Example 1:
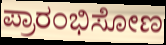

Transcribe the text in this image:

ಪ್ರಾರಂಭಿಸೋಣ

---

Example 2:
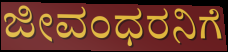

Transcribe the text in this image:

ಜೀವಂಧರನಿಗೆ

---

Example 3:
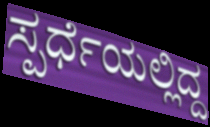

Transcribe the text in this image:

ಸ್ಪರ್ಧೆಯಲ್ಲಿದ್ದ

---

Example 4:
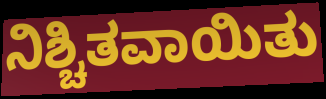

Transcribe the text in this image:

ನಿಶ್ಚಿತವಾಯಿತು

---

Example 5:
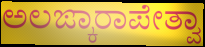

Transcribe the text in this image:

ಅಲಙ್ಕಾರಾಪೇತ್ವಾ